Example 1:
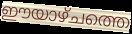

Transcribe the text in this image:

ഈയാഴ്ചത്തെ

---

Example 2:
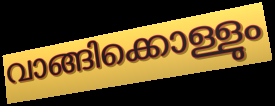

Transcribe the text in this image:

വാങ്ങിക്കൊള്ളും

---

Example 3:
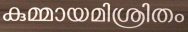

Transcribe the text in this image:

കുമ്മായമിശ്രിതം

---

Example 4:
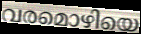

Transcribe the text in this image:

വരമൊഴിയെ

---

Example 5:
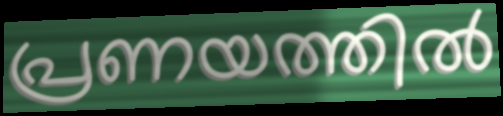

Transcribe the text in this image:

പ്രണയത്തിൽ